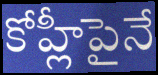
కోహ్లీపైనే